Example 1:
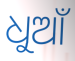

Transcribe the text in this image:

ଧୁଆଁ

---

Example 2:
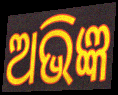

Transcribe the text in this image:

ଅଭିଜ୍ଞ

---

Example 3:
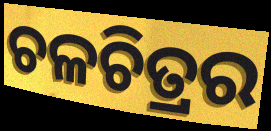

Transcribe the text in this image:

ଚଳଚିତ୍ରର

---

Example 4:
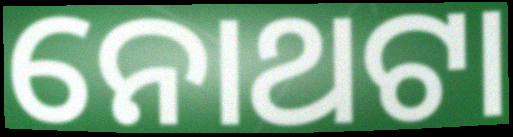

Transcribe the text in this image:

ନୋଥଟା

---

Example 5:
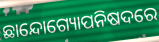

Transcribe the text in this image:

ଛାନ୍ଦୋଗ୍ୟୋପନିଷଦରେ